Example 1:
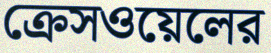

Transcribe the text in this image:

ক্রেসওয়েলের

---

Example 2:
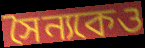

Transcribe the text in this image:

সৈন্যকেও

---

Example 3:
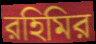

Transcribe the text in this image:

রহিমির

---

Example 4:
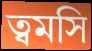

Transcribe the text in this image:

ত্বমসি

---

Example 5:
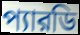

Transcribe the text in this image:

প্যারডি